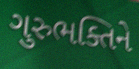
ગુરુભક્તિને